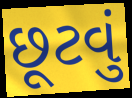
છૂટવું